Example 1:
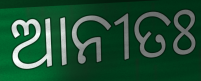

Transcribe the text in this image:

ଆନୀତଃ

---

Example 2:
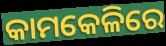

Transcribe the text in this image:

କାମକେଳିରେ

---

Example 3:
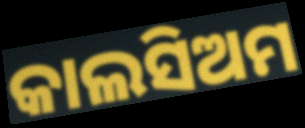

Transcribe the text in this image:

କାଲସିଅମ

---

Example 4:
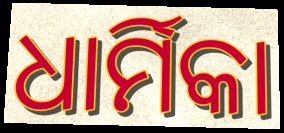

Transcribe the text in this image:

ଧାର୍ମିକା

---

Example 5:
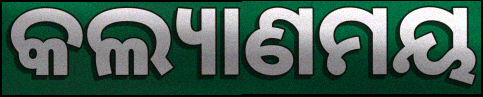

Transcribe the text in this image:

କଲ୍ୟାଣମୟ